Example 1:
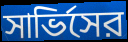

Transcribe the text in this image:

সার্ভিসের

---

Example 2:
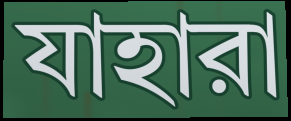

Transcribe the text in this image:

যাহারা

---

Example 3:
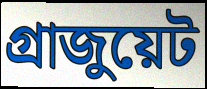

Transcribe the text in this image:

গ্রাজুয়েট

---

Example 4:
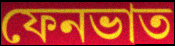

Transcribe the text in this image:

ফেনভাত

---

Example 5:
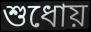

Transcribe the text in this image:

শুধোয়